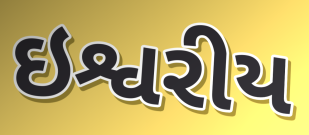
ઇશ્વરીય